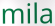
mila